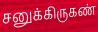
சனுக்கிருகண்